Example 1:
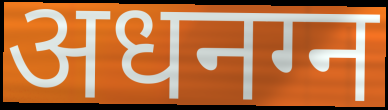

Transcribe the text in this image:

अधनग्न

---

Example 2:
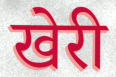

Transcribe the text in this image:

खेरी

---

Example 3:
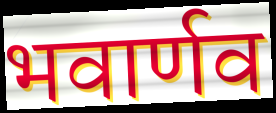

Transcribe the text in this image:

भवार्णव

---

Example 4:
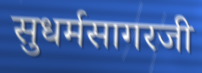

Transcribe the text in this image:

सुधर्मसागरजी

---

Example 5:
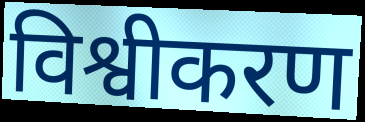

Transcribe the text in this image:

विश्वीकरण